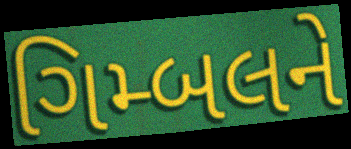
ગિમ્બલને